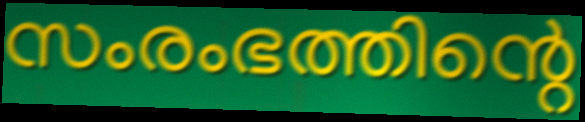
സംരംഭത്തിന്റെ